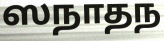
ஸநாதந